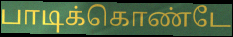
பாடிக்கொண்டே